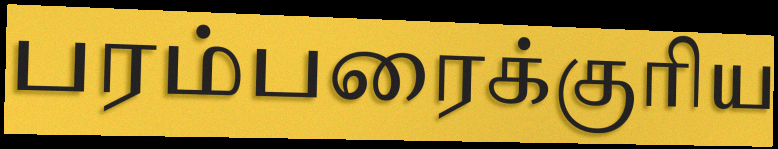
பரம்பரைக்குரிய